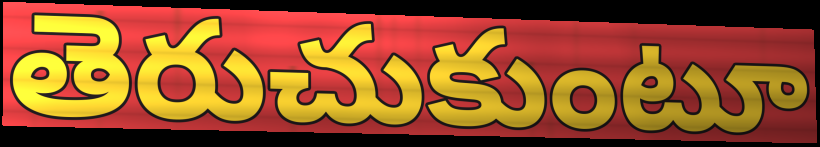
తెరుచుకుంటూ